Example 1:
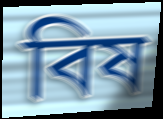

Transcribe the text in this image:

বিষ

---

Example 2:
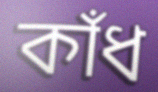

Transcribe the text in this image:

কাঁধ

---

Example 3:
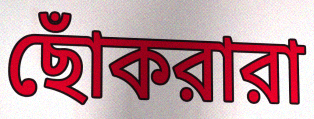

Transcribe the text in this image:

ছোঁকরারা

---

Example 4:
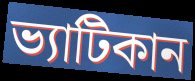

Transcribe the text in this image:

ভ্যাটিকান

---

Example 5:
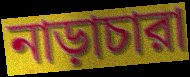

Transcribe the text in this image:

নাড়াচারা